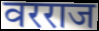
वरराज